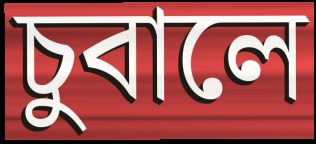
চুবালে